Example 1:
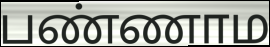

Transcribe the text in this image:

பண்ணாம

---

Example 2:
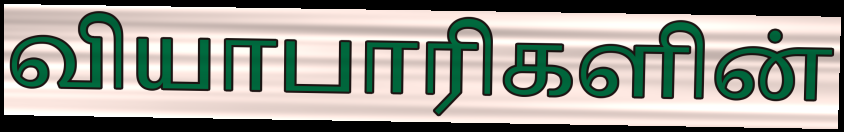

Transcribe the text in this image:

வியாபாரிகளின்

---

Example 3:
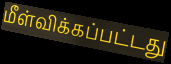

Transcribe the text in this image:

மீள்விக்கப்பட்டது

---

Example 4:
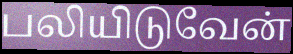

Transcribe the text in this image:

பலியிடுவேன்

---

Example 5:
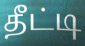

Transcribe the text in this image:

தீட்டி